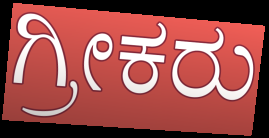
ಗ್ರೀಕರು